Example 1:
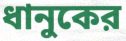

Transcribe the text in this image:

ধানুকের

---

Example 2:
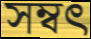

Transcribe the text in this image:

সম্বৎ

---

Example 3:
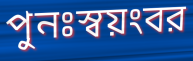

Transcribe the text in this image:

পুনঃস্বয়ংবর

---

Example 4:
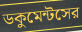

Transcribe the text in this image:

ডকুমেন্টসের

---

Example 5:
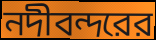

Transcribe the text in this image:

নদীবন্দরের